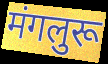
मंगलुरू